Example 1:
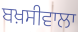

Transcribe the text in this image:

ਬਖ਼ਸੀਵਾਲਾ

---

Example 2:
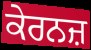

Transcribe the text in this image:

ਕੇਰਨਜ਼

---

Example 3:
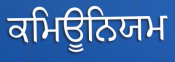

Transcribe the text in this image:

ਕਮਿਊਨਿਯਮ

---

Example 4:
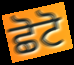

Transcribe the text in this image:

ਛੋਟੋ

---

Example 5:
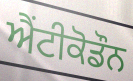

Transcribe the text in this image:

ਐਂਟੀਕੋਡੌਨ